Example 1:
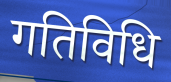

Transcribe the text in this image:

गतिविधि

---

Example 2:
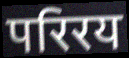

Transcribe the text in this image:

परिरय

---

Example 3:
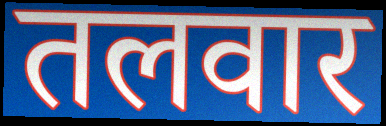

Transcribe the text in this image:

तलवार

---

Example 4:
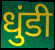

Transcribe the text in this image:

धुंडी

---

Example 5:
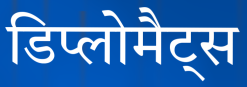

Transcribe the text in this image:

डिप्लोमैट्स